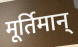
मूर्तिमान्